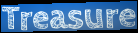
Treasure